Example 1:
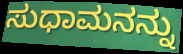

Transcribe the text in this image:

ಸುಧಾಮನನ್ನು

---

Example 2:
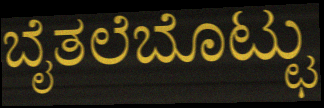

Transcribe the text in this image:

ಬೈತಲೆಬೊಟ್ಟು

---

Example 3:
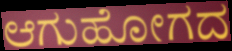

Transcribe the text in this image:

ಆಗುಹೋಗದ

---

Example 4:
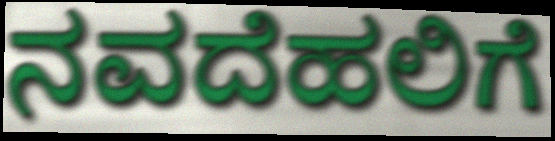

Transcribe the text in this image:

ನವದೆಹಲಿಗೆ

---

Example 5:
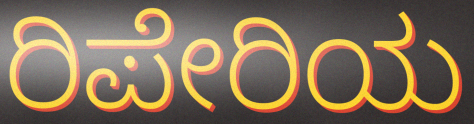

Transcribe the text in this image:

ರಿಪೇರಿಯ